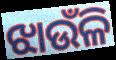
ଝାଉଁଳି